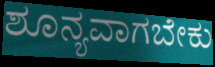
ಶೂನ್ಯವಾಗಬೇಕು